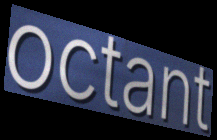
octant